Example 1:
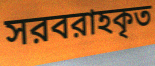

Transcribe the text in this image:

সরবরাহকৃত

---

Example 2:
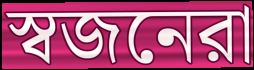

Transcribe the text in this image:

স্বজনেরা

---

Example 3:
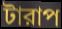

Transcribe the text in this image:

টারাপ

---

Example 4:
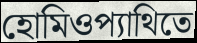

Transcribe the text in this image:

হোমিওপ্যাথিতে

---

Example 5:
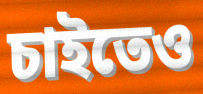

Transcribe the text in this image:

চাইতেও